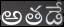
అతడే